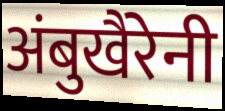
अंबुखैरेनी